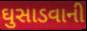
ઘુસાડવાની